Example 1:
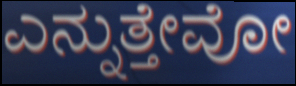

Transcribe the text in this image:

ಎನ್ನುತ್ತೇವೋ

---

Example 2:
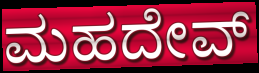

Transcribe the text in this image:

ಮಹದೇವ್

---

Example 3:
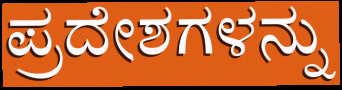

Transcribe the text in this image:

ಪ್ರದೇಶಗಳನ್ನು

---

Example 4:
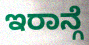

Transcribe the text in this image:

ಇರಾನ್ಗೆ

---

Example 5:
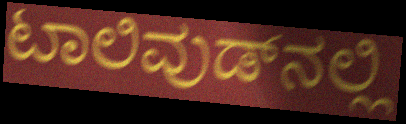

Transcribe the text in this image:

ಟಾಲಿವುಡ್‌ನಲ್ಲಿ